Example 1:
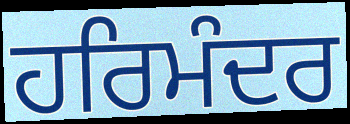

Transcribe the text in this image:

ਹਰਿਮੰਦਰ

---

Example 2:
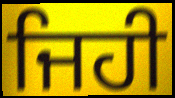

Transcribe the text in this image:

ਜਿਹੀ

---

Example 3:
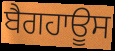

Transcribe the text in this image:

ਬੈਗਹਾਊਸ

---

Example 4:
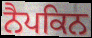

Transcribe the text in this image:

ਨੈਪਕਿਨ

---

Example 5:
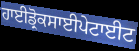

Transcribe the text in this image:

ਹਾਈਡ੍ਰੋਕਸਾਈਪੇਟਾਈਟ